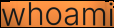
whoami